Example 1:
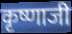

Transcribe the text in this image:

कृष्णाजी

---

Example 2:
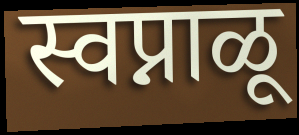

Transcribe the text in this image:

स्वप्नाळू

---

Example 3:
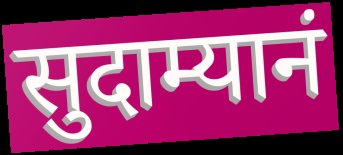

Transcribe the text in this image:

सुदाम्यानं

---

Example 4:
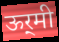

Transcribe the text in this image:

ऊर्मी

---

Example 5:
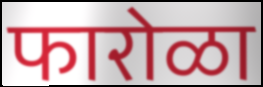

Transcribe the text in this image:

फारोळा